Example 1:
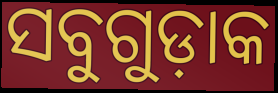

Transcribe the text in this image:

ସବୁଗୁଡ଼ାକ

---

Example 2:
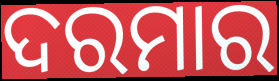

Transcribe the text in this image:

ଦରମାର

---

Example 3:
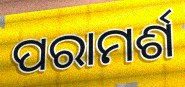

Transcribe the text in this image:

ପରାମର୍ଶ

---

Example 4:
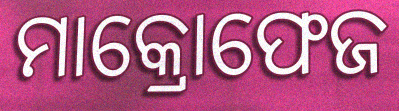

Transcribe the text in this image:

ମାକ୍ରୋଫେଜ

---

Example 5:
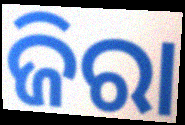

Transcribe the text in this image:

ଜିରା